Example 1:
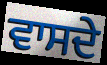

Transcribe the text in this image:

ਵਾਸਦੇ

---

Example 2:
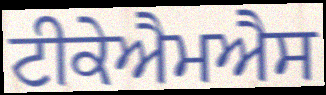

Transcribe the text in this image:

ਟੀਕੇਐਮਐਸ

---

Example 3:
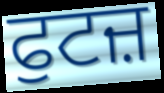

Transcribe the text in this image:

ਫੁਟਜ਼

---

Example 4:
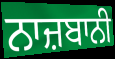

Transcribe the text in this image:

ਨਾਜ਼ਬਾਨੀ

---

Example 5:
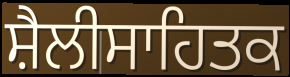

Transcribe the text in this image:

ਸ਼ੈਲੀਸਾਹਿਤਕ